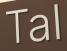
Tal